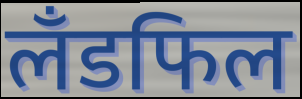
लँडफिल